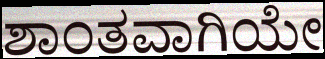
ಶಾಂತವಾಗಿಯೇ